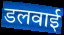
डलवाई